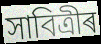
সাবিত্ৰীৰ